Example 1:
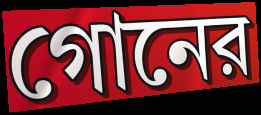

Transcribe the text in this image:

গোনের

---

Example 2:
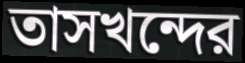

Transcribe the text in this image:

তাসখন্দের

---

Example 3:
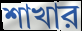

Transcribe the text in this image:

শাখার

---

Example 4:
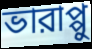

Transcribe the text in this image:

ভারাপ্পু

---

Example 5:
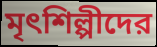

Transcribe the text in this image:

মৃৎশিল্পীদের